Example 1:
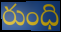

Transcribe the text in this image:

రుంధి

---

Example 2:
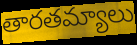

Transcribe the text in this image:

తారతమ్యాలు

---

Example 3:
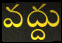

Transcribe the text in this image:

వద్దు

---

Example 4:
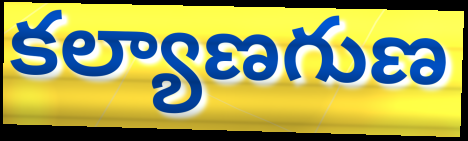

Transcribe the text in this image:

కల్యాణగుణ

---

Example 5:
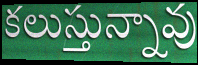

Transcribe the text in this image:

కలుస్తున్నావు